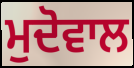
ਮੁਦੋਵਾਲ